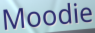
Moodie